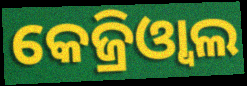
କେଜ୍ରିଓ୍ଵାଲ